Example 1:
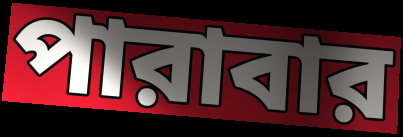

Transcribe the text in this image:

পারাবার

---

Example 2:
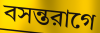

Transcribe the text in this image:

বসন্তরাগে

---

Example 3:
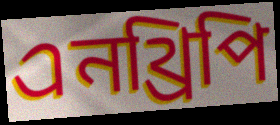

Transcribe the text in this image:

এনথ্রিপি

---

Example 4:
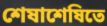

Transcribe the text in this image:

শেষাশেষিতে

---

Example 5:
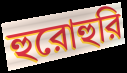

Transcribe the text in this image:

হুরোহুরি